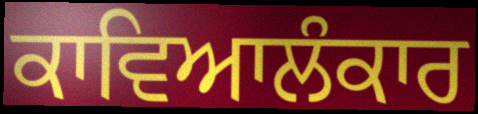
ਕਾਵਿਆਲੰਕਾਰ